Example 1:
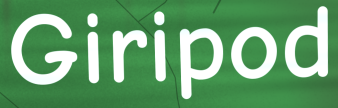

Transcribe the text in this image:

Giripod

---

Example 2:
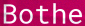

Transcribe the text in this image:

Bothe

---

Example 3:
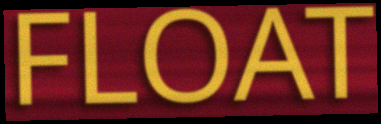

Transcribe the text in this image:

FLOAT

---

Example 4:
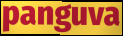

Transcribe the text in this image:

panguva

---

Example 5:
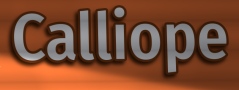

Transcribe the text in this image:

Calliope